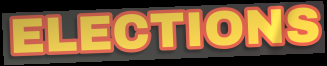
ELECTIONS